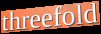
threefold